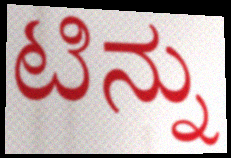
ಟಿನ್ನು